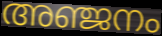
അഞ്ജനം